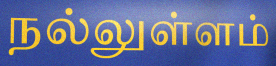
நல்லுள்ளம்